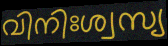
വിനിഃശ്വസ്യ